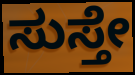
ಸುಸ್ತೇ